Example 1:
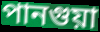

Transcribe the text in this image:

পানগুয়া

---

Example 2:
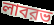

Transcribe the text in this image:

লাবরভ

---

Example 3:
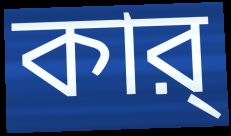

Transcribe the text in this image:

কার্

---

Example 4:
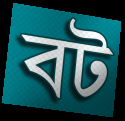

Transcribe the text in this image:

বট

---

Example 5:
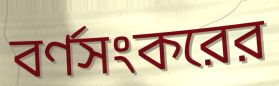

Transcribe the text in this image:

বর্ণসংকরের